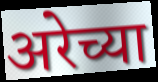
अरेच्या